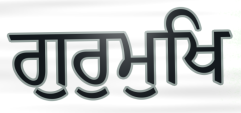
ਗੁਰੁਮੁਖਿ